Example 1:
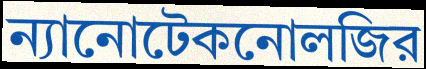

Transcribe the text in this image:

ন্যানোটেকনোলজির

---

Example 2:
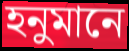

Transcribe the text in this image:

হনুমানে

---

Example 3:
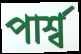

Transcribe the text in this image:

পার্শ্ব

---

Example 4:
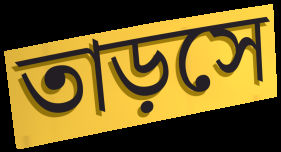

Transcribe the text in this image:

তাড়সে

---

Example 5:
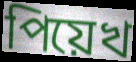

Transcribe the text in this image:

পিয়েখ